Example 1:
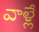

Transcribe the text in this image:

వాళ్లే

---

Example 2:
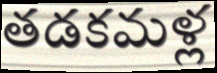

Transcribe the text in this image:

తడకమళ్ల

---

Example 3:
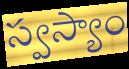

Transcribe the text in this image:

స్వస్యాం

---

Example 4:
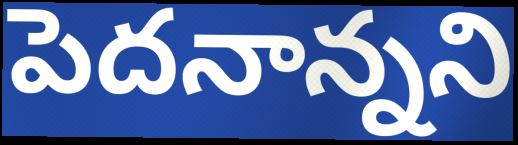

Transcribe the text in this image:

పెదనాన్నని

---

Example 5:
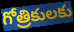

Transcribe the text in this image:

గోత్రికులకు